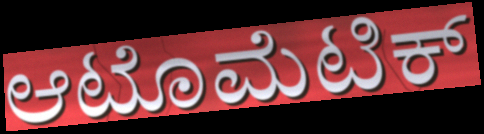
ಆಟೊಮೆಟಿಕ್